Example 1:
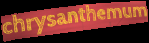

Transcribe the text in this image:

chrysanthemum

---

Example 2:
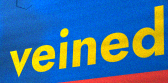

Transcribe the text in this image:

veined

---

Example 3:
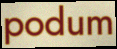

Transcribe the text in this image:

podum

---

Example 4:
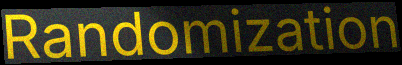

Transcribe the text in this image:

Randomization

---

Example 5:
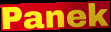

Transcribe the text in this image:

Panek